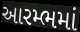
આરમ્ભમાં